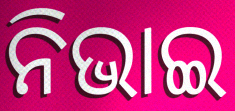
ନିଭାଇ